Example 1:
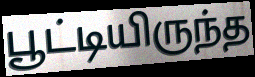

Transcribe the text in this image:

பூட்டியிருந்த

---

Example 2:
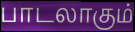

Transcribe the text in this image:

பாடலாகும்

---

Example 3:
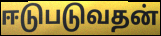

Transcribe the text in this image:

ஈடுபடுவதன்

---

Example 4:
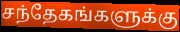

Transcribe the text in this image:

சந்தேகங்களுக்கு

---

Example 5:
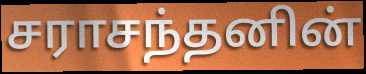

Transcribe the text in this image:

சராசந்தனின்